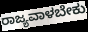
ರಾಜ್ಯವಾಳಬೇಕು